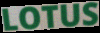
LOTUS